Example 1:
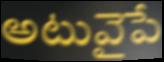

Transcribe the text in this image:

అటువైపే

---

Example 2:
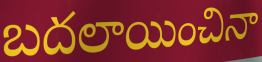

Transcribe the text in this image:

బదలాయించినా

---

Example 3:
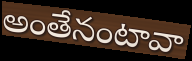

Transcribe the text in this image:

అంతేనంటావా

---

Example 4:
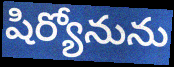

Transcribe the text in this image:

షిర్యోనును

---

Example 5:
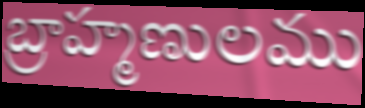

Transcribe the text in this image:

బ్రాహ్మణులము